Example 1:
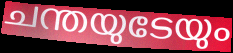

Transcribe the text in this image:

ചന്തയുടേയും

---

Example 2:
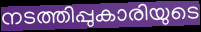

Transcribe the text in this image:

നടത്തിപ്പുകാരിയുടെ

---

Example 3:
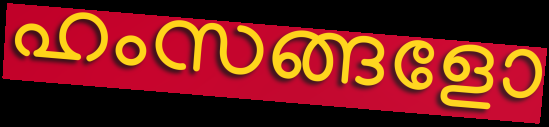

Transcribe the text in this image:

ഹംസങ്ങളോ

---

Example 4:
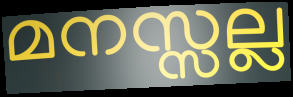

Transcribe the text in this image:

മനസ്സല്ല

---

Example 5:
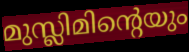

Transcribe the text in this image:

മുസ്ലിമിന്റെയും